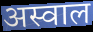
अस्वाल